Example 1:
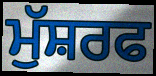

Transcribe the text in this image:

ਮੁੱਸ਼ਰਫ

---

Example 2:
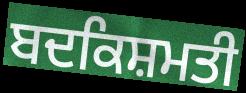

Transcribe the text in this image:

ਬਦਕਿਸ਼ਮਤੀ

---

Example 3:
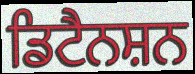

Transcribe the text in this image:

ਡਿਟੈਨਸ਼ਨ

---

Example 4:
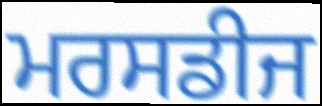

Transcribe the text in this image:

ਮਰਸਡੀਜ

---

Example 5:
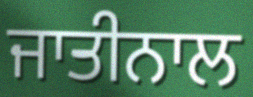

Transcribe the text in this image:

ਜਾਤੀਨਾਲ